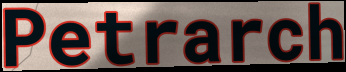
Petrarch